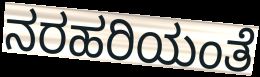
ನರಹರಿಯಂತೆ